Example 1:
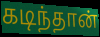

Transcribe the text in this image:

கடிந்தான்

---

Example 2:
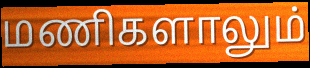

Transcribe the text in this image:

மணிகளாலும்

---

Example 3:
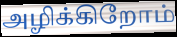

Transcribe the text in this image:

அழிக்கிறோம்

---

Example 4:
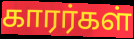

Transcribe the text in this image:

காரர்கள்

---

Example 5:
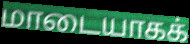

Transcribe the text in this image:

மாடையாகக்